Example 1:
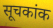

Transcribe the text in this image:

सूचकांक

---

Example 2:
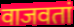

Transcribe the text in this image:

वाजवतां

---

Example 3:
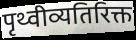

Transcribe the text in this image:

पृथ्वीव्यतिरिक्त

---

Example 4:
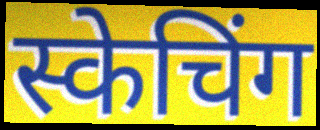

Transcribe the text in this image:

स्केचिंग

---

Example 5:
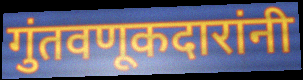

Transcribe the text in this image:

गुंतवणूकदारांनी